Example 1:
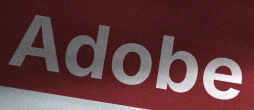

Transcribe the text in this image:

Adobe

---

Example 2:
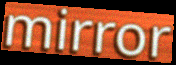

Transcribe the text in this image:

mirror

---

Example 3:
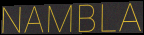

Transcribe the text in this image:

NAMBLA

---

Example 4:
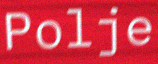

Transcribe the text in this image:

Polje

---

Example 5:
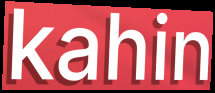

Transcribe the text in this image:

kahin